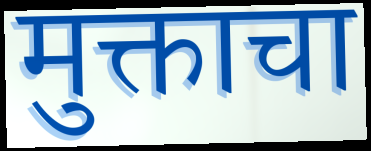
मुक्ताचा